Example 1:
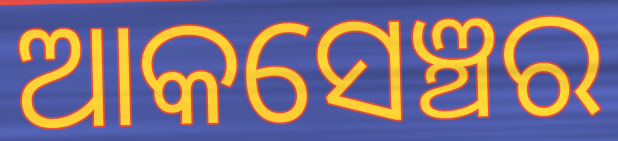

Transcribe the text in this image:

ଆକସେଞ୍ଚର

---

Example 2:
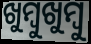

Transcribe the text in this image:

ଖୁମ୍ୱୁଖୁମ୍ବୁ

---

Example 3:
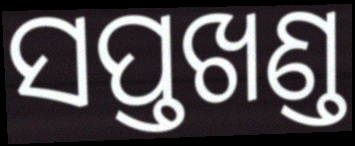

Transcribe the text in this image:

ସପ୍ତଖଣ୍ଡ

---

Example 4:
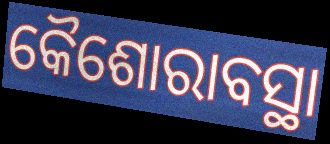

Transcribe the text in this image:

କୈଶୋରାବସ୍ଥା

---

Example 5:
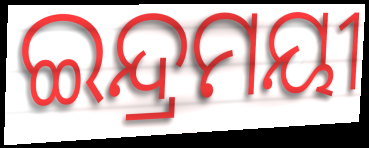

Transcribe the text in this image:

ଇନ୍ଦ୍ରମୟୀ